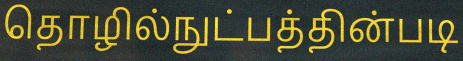
தொழில்நுட்பத்தின்படி